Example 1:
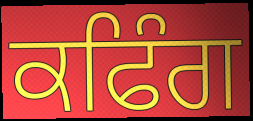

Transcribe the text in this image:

ਕਫਿੰਗ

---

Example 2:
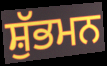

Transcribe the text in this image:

ਸ਼ੁੱਭਮਨ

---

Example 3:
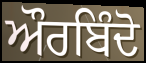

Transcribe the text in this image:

ਔਰਬਿੰਦੋ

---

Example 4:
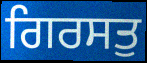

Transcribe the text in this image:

ਗਿਰਸਤੁ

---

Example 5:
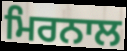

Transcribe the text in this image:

ਮਿਰਨਾਲ